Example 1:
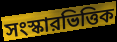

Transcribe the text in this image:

সংস্কারভিত্তিক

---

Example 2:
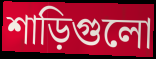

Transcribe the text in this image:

শাড়িগুলো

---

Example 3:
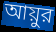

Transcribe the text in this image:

আয়ুর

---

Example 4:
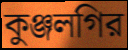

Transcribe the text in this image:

কুঞ্জলগির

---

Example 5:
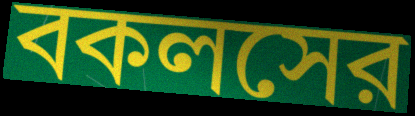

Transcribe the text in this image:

বকলসের